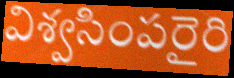
విశ్వసింపరైరి